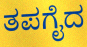
ತಪಗೈದ